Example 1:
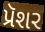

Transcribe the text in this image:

પ્રૅશર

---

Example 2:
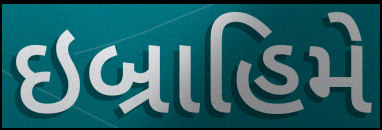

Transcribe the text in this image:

ઇબ્રાહિમે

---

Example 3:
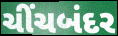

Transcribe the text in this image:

ચીંચબંદર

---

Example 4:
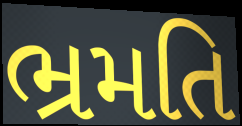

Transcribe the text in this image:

ભ્રમતિ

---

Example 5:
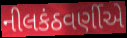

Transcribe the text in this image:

નીલકંઠવર્ણીએ